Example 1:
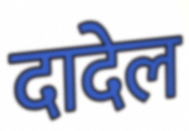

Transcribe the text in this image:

दादेल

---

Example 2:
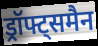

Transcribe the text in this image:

ड्रॉफ्ट्समैन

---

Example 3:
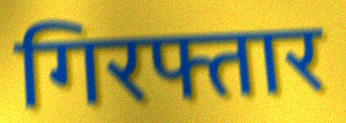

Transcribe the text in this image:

गिरफ्तार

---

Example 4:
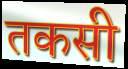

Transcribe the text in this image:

तकसी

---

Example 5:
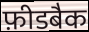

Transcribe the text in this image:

फ़ीडबैक